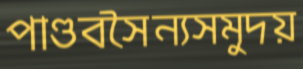
পাণ্ডবসৈন্যসমুদয়